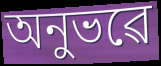
অনুভৱে